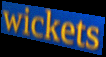
wickets